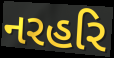
નરહરિ